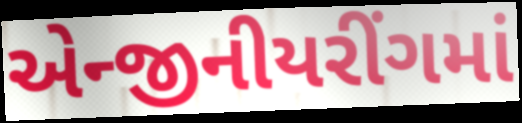
એન્જીનીયરીંગમાં